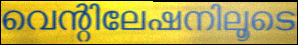
വെന്റിലേഷനിലൂടെ